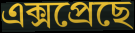
এক্সপ্ৰেছে